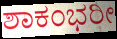
ಶಾಕಂಭರೀ